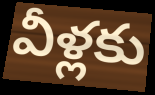
వీళ్లకు